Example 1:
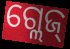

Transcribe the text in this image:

ଗ୍ଲେଜ୍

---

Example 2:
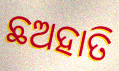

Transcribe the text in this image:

ଛଅହାତି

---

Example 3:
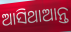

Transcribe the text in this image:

ଆସିଥାଆନ୍ତ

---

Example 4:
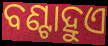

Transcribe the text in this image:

ବଣ୍ଟାହୁଏ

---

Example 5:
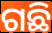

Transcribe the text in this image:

ଗଛି